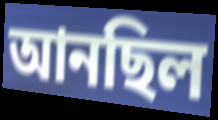
আনছিল